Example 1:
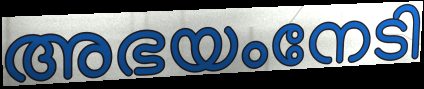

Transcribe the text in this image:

അഭയംനേടി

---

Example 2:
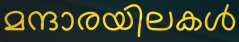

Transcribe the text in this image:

മന്ദാരയിലകൾ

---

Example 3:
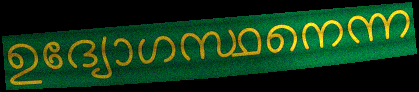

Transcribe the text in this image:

ഉദ്യോഗസ്ഥനെന്ന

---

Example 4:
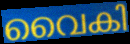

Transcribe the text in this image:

വൈകി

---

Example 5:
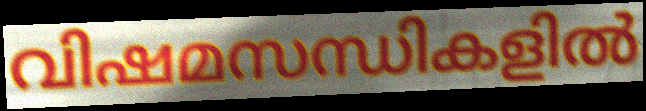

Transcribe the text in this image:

വിഷമസന്ധികളിൽ